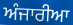
ਅੰਜਾਰੀਆ